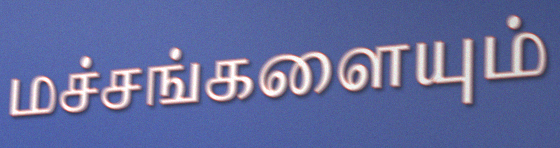
மச்சங்களையும்